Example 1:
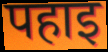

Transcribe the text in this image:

पहाइ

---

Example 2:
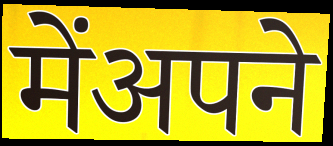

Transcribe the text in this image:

मेंअपने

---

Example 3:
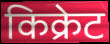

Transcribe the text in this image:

किक्रेट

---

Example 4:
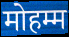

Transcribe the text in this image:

मोहम्म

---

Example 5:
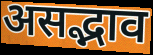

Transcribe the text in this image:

असद्भाव